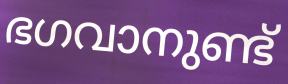
ഭഗവാനുണ്ട്